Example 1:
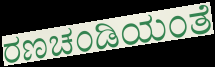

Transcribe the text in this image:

ರಣಚಂಡಿಯಂತೆ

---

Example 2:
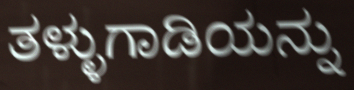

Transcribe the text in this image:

ತಳ್ಳುಗಾಡಿಯನ್ನು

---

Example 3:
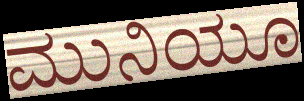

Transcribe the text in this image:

ಮುನಿಯೂ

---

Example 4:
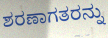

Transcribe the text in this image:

ಶರಣಾಗತರನ್ನು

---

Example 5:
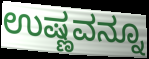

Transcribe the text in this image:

ಉಷ್ಣವನ್ನೂ